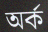
অর্ক